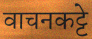
वाचनकट्टे